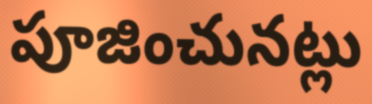
పూజించునట్లు